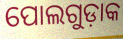
ପୋଲଗୁଡ଼ାକ